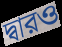
দ্বারও